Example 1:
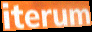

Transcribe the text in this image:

iterum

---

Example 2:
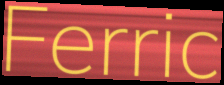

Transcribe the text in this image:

Ferric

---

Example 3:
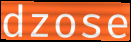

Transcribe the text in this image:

dzose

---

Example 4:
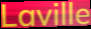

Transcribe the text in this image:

Laville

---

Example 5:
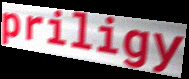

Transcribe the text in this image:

priligy